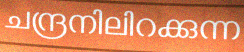
ചന്ദ്രനിലിറക്കുന്ന